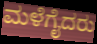
ಮಳೆಗೈದರು